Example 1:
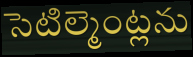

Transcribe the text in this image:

సెటిల్మెంట్లను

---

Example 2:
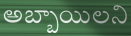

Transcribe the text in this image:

అబ్బాయిలని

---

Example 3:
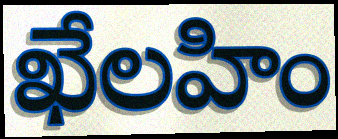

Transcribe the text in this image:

ఖేలహిం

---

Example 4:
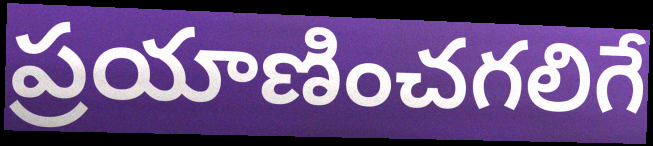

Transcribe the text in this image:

ప్రయాణించగలిగే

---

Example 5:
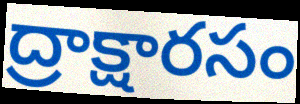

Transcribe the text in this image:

ద్రాక్షారసం